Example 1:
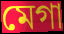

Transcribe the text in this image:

মেগা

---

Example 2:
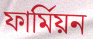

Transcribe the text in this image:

ফাৰ্মিয়ন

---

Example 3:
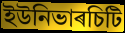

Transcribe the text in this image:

ইউনিভাৰচিটি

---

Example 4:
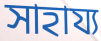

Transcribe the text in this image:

সাহায্য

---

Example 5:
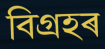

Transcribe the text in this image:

বিগ্ৰহৰ